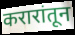
करारांतून